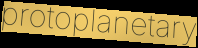
protoplanetary